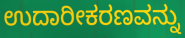
ಉದಾರೀಕರಣವನ್ನು